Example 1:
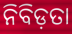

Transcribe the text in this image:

ନିବିଡ଼ତା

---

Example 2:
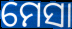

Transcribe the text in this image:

ମେସା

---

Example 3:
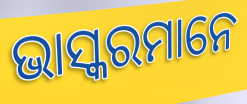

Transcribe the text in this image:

ଭାସ୍କରମାନେ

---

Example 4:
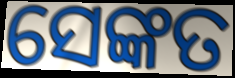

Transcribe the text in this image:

ସେଙ୍କତ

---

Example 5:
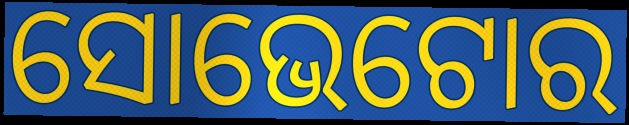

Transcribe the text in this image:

ସୋଭେଟୋର